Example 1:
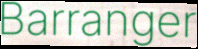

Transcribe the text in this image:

Barranger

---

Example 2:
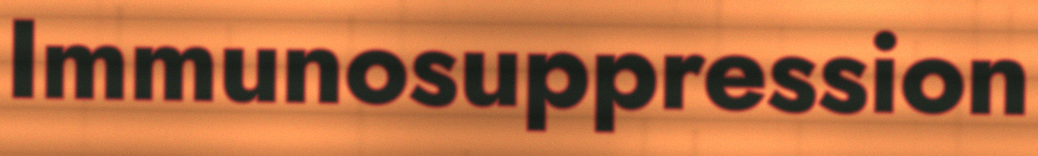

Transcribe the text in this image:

Immunosuppression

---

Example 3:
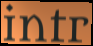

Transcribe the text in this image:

intr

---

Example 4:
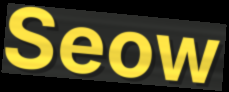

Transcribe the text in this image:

Seow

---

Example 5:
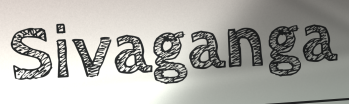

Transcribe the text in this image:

Sivaganga